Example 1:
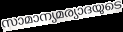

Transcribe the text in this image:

സാമാന്യമര്യാദയുടെ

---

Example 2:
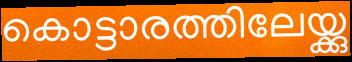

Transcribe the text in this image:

കൊട്ടാരത്തിലേയ്ക്കു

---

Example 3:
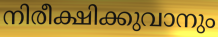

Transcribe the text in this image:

നിരീക്ഷിക്കുവാനും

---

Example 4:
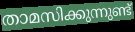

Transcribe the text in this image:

താമസിക്കുന്നുണ്ട്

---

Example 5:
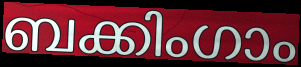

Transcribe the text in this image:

ബക്കിംഗാം